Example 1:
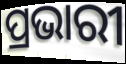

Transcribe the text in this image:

ପ୍ରଭାରୀ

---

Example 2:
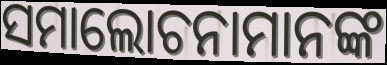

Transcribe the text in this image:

ସମାଲୋଚନାମାନଙ୍କ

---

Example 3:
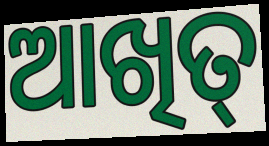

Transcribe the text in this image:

ଆଖିତ୍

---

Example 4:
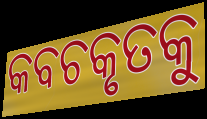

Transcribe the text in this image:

କବଚକୃତକୁ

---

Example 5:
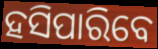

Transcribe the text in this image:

ହସିପାରିବେ